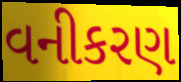
વનીકરણ